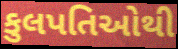
કુલપતિઓથી